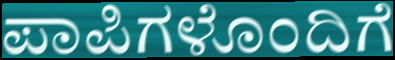
ಪಾಪಿಗಳೊಂದಿಗೆ